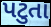
પટુતા